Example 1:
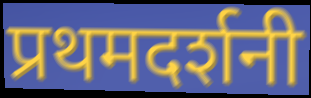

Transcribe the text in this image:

प्रथमदर्शनी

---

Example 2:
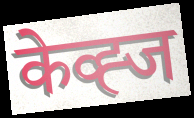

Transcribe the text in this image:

केव्ह्ज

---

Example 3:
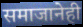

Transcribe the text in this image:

समाजानेही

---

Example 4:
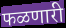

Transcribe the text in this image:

फळणारी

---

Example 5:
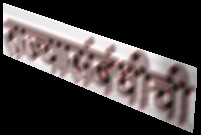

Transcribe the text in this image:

राज्यासंबंधीची